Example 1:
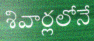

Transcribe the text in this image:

శివార్లలోనే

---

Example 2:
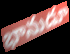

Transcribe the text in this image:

భానుడూ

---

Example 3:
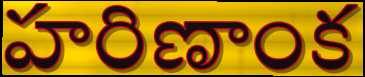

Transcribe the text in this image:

హరిణాంక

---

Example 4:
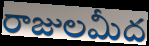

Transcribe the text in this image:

రాజులమీద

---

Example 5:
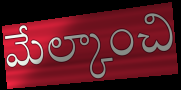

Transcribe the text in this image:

మేల్కాంచి